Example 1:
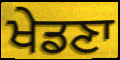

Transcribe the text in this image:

ਖੇਡਣਾ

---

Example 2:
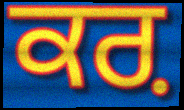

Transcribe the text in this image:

ਕਰ਼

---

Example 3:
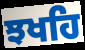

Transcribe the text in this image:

ਝਖਹਿ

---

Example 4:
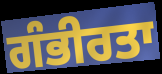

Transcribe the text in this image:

ਗੰਭੀਰਤਾ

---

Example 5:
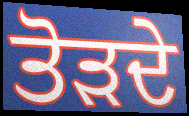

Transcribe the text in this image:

ਤੋੜਦੇ